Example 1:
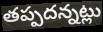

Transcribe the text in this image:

తప్పదన్నట్లు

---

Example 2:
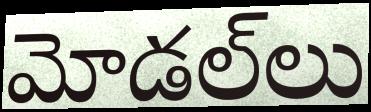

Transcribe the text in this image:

మోడల్‌లు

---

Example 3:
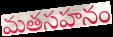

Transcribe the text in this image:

మతసహనం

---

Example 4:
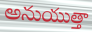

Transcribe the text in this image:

అనుయుత్తా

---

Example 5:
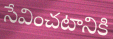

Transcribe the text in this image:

సేవించటానికి